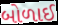
બોળાઈ